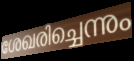
ശേഖരിച്ചെന്നും